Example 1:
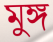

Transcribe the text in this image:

মুঙ্গ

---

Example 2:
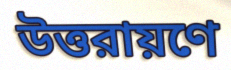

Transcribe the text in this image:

উত্তরায়ণে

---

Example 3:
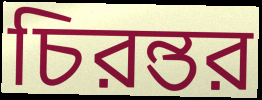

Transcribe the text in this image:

চিরন্তর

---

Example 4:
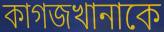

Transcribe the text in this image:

কাগজখানাকে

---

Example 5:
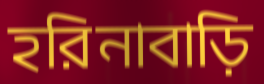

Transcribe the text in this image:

হরিনাবাড়ি